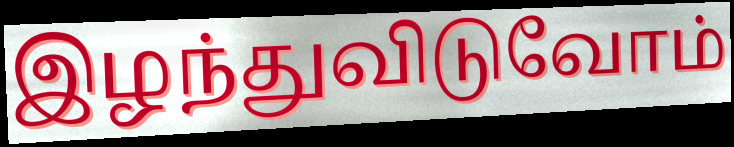
இழந்துவிடுவோம்